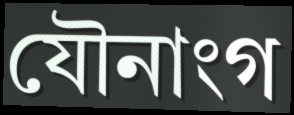
যৌনাংগ